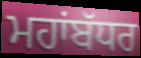
ਮਹਾਂਬੱਧਰ